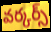
వర్కర్స్